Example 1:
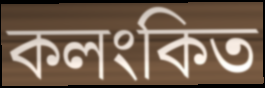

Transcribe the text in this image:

কলংকিত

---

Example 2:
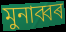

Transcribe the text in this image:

মুনাব্বৰ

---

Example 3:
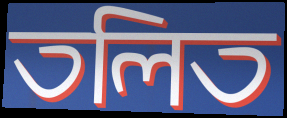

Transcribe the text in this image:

তলিত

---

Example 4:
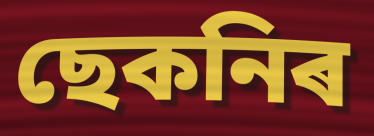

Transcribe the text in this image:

ছেকনিৰ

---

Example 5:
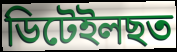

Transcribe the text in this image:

ডিটেইলছত